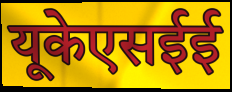
यूकेएसईई